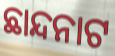
ଛାନ୍ଦନାଟ